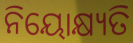
ନିୟୋକ୍ଷ୍ୟତି